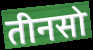
तीनसो